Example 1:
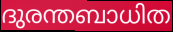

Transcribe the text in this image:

ദുരന്തബാധിത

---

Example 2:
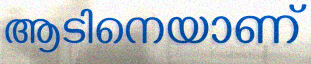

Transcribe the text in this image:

ആടിനെയാണ്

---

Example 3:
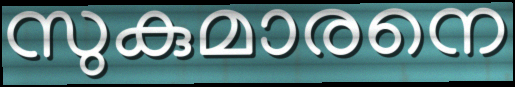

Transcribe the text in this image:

സുകുമാരനെ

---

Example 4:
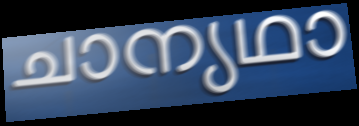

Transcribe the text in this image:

ചാന്യഥാ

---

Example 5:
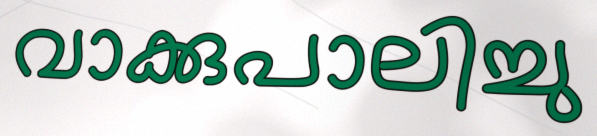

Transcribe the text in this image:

വാക്കുപാലിച്ചു